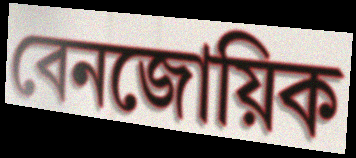
বেনজোয়িক